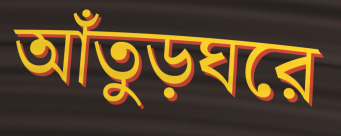
আঁতুড়ঘরে